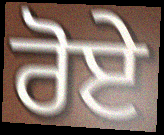
ਰੋਏ